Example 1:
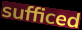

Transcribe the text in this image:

sufficed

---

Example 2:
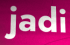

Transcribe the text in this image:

jadi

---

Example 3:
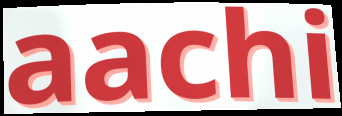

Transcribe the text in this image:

aachi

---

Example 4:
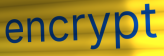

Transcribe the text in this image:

encrypt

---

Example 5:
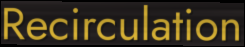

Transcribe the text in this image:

Recirculation